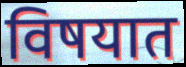
विषयात